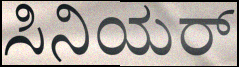
ಸಿನಿಯರ್